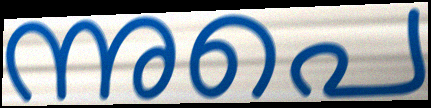
ന്നുപെ